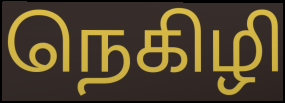
நெகிழி